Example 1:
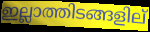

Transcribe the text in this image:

ഇല്ലാത്തിടങ്ങളില്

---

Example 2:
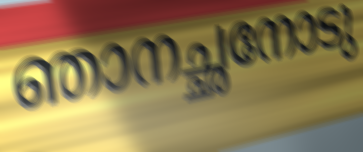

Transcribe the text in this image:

ഞാനച്ഛനോടു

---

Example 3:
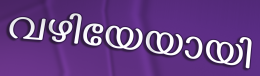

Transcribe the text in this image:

വഴിയേയായി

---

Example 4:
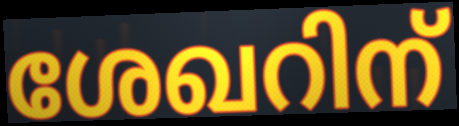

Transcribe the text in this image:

ശേഖറിന്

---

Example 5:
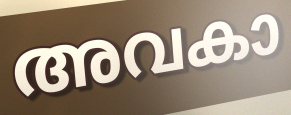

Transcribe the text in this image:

അവകാ